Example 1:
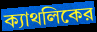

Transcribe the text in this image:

ক্যাথলিকের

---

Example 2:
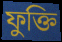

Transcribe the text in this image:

ফুক্তি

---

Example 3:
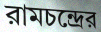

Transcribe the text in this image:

রামচন্দ্রের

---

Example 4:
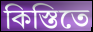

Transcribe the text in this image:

কিস্তিতে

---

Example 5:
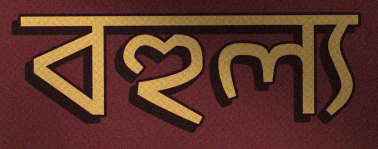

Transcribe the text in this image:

বহুল্য